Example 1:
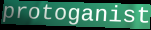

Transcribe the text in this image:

protoganist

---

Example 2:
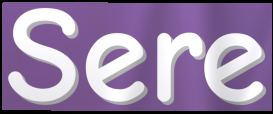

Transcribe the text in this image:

Sere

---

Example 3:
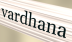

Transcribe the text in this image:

vardhana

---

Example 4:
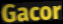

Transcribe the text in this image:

Gacor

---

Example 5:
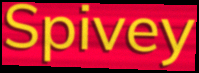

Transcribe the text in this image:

Spivey